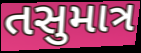
તસુમાત્ર